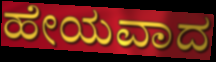
ಹೇಯವಾದ